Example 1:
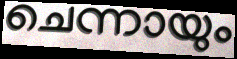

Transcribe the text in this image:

ചെന്നായും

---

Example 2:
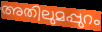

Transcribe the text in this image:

അതിലുമപ്പുറം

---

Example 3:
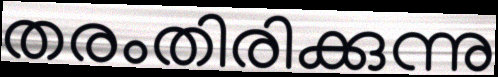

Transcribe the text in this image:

തരംതിരിക്കുന്നു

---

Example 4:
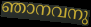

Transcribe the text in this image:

ഞാനവനു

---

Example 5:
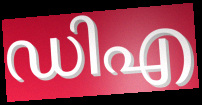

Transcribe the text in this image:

ഡിഎ